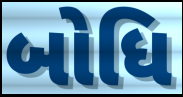
બોધિ